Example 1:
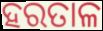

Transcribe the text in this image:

ହରତାଳ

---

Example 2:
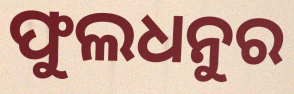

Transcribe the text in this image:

ଫୁଲଧନୁର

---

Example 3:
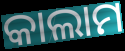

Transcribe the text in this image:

କାଲାମ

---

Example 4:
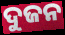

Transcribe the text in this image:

ଦୁଜନ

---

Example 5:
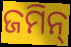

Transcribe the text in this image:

ଜମିନ୍